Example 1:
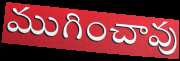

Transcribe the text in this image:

ముగించావు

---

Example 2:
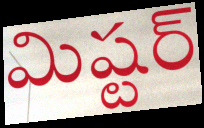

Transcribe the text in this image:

మిష్టర్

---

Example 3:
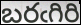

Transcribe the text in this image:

బరఁగిరి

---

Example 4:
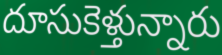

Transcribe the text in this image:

దూసుకెళ్తున్నారు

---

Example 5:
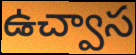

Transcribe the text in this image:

ఉచ్వాస